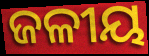
ଜଳୀୟ